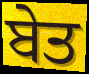
ਬੇਤ